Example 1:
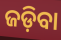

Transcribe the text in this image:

ଜଡ଼ିବା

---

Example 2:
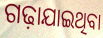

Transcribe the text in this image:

ଗଢ଼ାଯାଇଥିବା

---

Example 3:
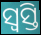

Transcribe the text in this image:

ସ୍ଵସ୍ତି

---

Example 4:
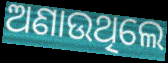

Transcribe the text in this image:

ଅଣାଉଥିଲେ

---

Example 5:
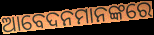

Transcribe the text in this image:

ଆବେଦନମାନଙ୍କରେ